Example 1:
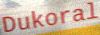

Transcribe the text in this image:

Dukoral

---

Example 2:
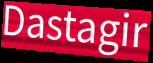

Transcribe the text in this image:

Dastagir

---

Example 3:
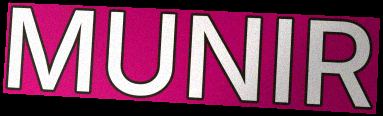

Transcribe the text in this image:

MUNIR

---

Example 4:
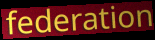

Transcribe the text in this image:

federation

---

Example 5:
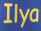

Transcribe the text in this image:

Ilya